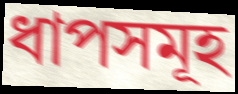
ধাপসমূহ